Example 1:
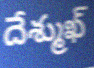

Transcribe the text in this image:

దేశ్ముఖ్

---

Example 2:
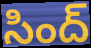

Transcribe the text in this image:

సింద్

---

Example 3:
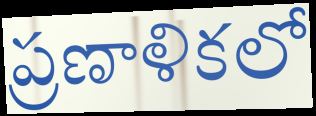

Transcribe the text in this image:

ప్రణాళికలో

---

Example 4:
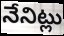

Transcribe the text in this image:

నేనిట్లు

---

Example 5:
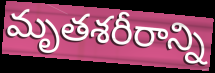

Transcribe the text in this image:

మృతశరీరాన్ని